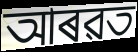
আৰৱত